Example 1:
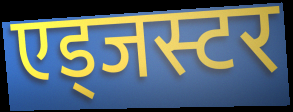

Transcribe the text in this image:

एड्जस्टर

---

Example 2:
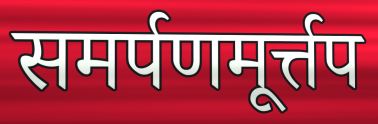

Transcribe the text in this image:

समर्पणमूर्त्तप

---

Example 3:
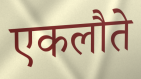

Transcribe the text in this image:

एकलौते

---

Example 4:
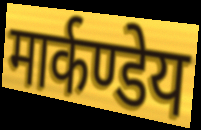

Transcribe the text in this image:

मार्कण्डेय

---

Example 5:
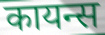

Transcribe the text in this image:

कायन्स